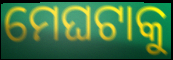
ମେଘଟାକୁ